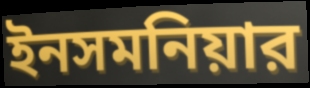
ইনসমনিয়ার